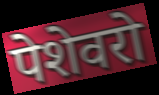
पेशेवरो